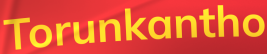
Torunkantho